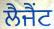
ਲੈਜੈਂਟ